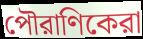
পৌরাণিকেরা